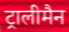
ट्रालीमैन